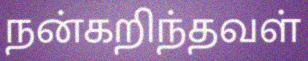
நன்கறிந்தவள்